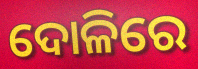
ଦୋଳିରେ